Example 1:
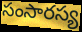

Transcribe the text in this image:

సంసారస్య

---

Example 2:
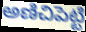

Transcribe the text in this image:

అణిచిపెట్టి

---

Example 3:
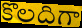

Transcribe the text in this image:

కొలదిగా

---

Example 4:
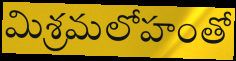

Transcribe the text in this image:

మిశ్రమలోహంతో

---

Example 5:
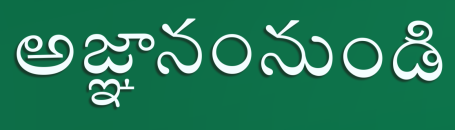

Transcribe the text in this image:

అజ్ఞానంనుండి